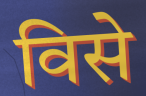
विसे